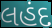
લહંદ